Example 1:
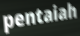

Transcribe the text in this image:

pentaiah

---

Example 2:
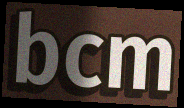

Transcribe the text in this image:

bcm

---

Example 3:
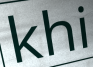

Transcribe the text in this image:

khi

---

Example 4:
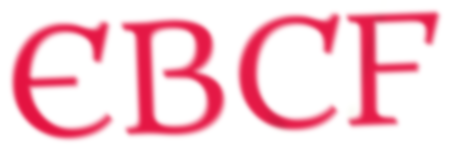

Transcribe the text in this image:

EBCF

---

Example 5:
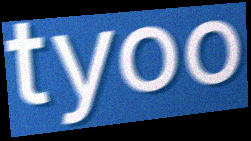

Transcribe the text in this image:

tyoo